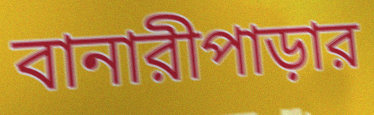
বানারীপাড়ার